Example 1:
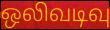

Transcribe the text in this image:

ஒலிவடிவு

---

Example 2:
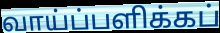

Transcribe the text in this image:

வாய்ப்பளிக்கப்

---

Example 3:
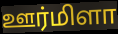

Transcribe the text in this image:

ஊர்மிளா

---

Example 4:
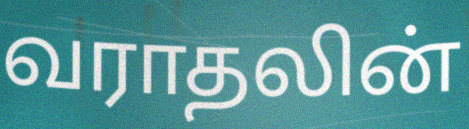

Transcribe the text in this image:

வராதலின்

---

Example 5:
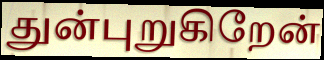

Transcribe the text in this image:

துன்புறுகிறேன்